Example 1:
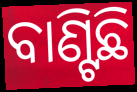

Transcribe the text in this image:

ବାଣ୍ଟିଛି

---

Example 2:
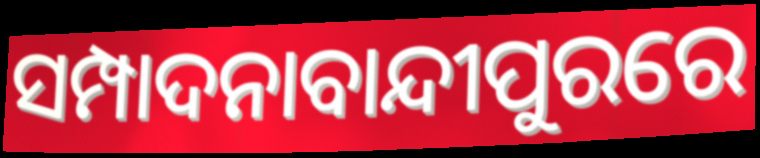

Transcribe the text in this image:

ସମ୍ପାଦନାବାନ୍ଦୀପୁରରେ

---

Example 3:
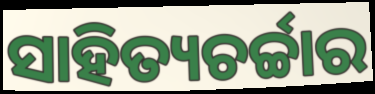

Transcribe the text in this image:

ସାହିତ୍ୟଚର୍ଚ୍ଚାର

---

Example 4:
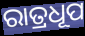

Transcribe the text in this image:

ରାତ୍ରଧୂପ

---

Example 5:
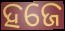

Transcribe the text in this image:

ହଜେ